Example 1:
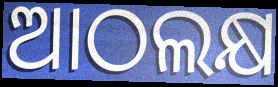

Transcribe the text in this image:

ଆଠଲକ୍ଷ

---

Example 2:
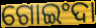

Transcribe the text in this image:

ଗୋଇଂଦା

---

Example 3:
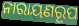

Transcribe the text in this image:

ନାରାୟଣରୂପ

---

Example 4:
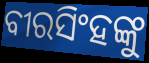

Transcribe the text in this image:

ବୀରସିଂହଙ୍କୁ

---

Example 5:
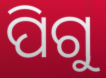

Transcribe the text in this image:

ପିଗୁ